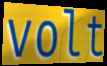
volt